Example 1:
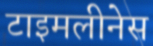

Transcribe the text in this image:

टाइमलीनेस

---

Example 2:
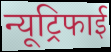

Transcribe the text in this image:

न्यूट्रिफाई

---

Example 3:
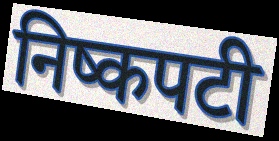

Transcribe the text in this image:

निष्कपटी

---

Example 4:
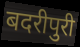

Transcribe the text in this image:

बदरीपुरी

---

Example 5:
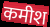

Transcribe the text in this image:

कमीश